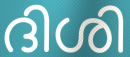
ദിശി